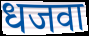
धजवा